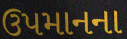
ઉપમાનના